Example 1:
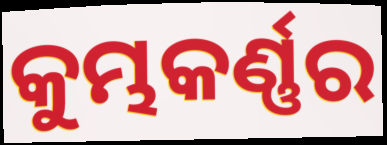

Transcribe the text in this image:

କୁମ୍ଭକର୍ଣ୍ଣର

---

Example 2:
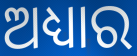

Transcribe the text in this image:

ଅଧ୍ୟାର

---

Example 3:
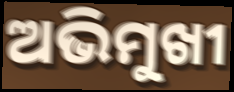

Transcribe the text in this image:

ଅଭିମୁଖୀ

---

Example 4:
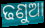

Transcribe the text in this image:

ଢଣୁଆ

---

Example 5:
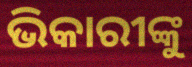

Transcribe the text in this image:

ଭିକାରୀଙ୍କୁ